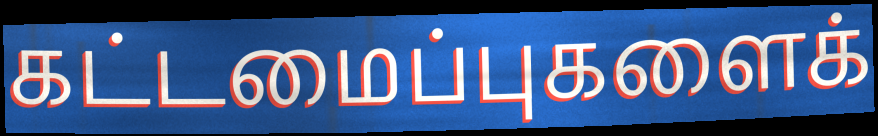
கட்டமைப்புகளைக்